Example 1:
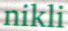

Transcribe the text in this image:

nikli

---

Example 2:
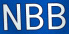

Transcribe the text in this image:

NBB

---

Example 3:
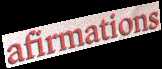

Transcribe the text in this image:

afirmations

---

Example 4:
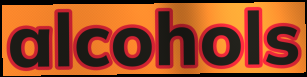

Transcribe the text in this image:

alcohols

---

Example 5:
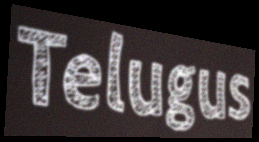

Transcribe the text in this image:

Telugus